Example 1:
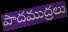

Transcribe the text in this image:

పాదముద్రలు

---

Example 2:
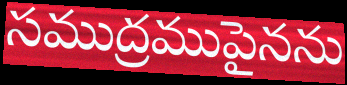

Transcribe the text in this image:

సముద్రముపైనను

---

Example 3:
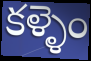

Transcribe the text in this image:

కళ్ళెం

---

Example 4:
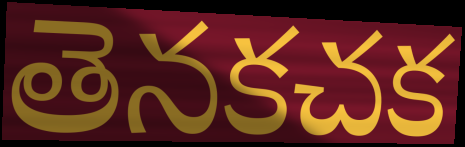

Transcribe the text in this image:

తెనకచక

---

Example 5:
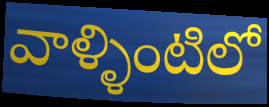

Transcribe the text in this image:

వాళ్ళింటిలో